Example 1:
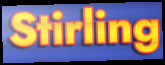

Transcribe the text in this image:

Stirling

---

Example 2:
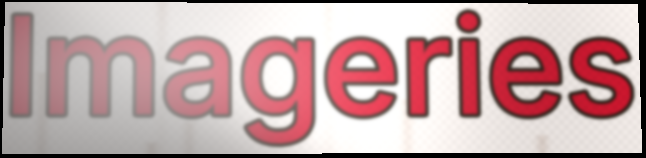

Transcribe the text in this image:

Imageries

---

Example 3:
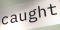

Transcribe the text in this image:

caught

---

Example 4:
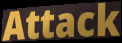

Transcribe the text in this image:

Attack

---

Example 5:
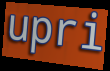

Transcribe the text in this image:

upri